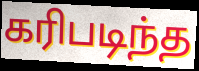
கரிபடிந்த